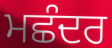
ਮਛੰਦਰ